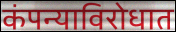
कंपन्याविरोधात